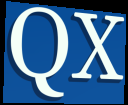
QX